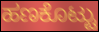
ಹಣಕೊಟ್ಟು